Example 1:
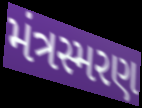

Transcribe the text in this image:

મંત્રસ્મરણ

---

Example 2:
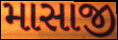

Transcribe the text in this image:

માસાજી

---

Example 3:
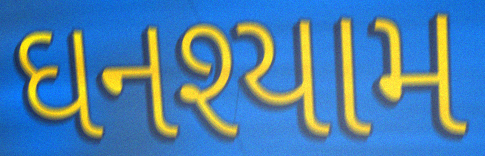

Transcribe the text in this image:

ઘનશ્યામ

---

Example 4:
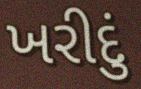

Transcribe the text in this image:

ખરીદું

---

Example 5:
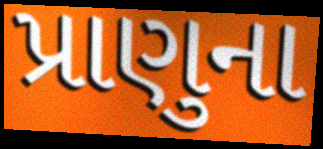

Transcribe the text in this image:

પ્રાણુના